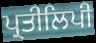
ਪ੍ਰਤੀਲਿਪੀ